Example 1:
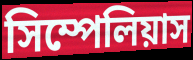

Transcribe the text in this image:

সিম্পেলিয়াস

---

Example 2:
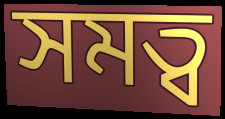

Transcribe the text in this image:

সমত্ব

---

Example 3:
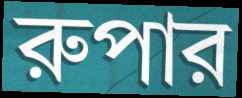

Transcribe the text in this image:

রুপার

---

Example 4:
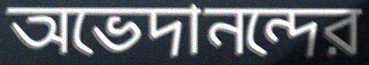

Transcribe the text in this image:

অভেদানন্দের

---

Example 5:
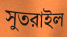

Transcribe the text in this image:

সুতরাইল